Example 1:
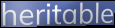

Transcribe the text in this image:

heritable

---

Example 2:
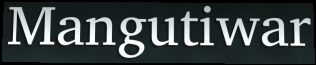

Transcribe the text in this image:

Mangutiwar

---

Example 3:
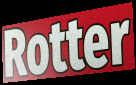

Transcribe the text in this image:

Rotter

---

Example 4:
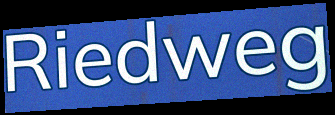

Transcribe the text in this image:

Riedweg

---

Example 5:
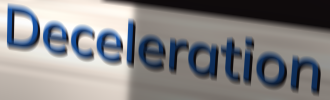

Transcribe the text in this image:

Deceleration